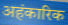
अहंकारिक